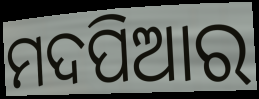
ମଦପିଆର